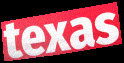
texas